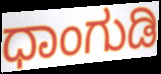
ಧಾಂಗುಡಿ